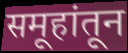
समूहांतून